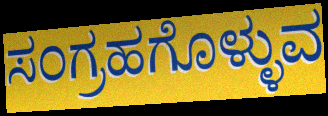
ಸಂಗ್ರಹಗೊಳ್ಳುವ